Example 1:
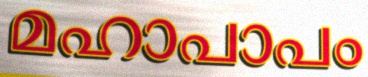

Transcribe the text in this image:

മഹാപാപം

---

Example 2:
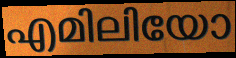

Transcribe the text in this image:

എമിലിയോ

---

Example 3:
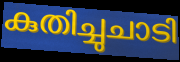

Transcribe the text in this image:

കുതിച്ചുചാടി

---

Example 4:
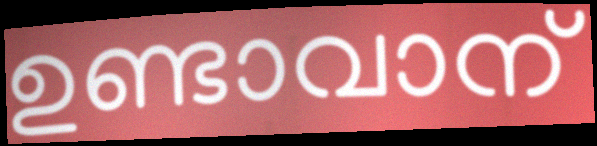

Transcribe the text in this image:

ഉണ്ടാവാന്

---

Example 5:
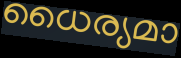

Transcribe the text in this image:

ധൈര്യമാ